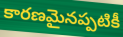
కారణమైనప్పటికీ